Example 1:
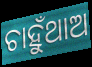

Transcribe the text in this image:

ଚାହୁଁଥାଅ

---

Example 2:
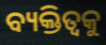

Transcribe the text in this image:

ବ୍ୟକ୍ତିତ୍ଵକୁ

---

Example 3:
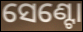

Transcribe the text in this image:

ସେଣ୍ଟୋ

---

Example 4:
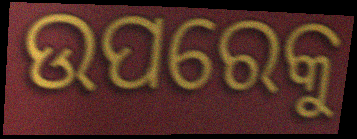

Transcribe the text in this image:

ଉପରେକୁ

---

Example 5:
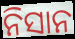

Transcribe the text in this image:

ନିସାନ